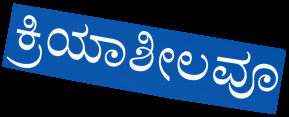
ಕ್ರಿಯಾಶೀಲವೂ